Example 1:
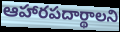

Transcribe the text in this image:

ఆహారపదార్థాలని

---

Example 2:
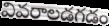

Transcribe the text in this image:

వివరాలడగడం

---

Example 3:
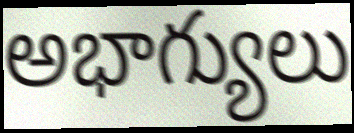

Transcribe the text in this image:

అభాగ్యులు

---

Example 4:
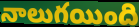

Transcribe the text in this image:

నాలుగయింది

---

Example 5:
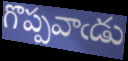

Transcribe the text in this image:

గొప్పవాఁడు